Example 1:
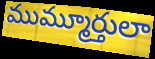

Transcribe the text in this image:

ముమ్మూర్తులా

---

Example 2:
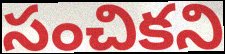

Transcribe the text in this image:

సంచికని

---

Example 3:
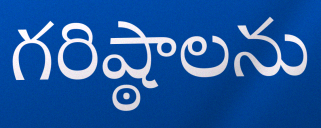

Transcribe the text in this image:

గరిష్ఠాలను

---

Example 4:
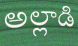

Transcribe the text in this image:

అల్లాడి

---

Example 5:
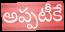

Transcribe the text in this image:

అప్పటీకే